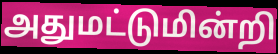
அதுமட்டுமின்றி